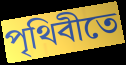
পৃথিবীতে